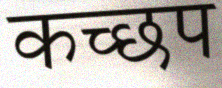
कच्छप